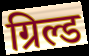
ग्रिल्ड